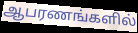
ஆபரணங்களில்